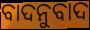
ବାଦନୁବାଦ